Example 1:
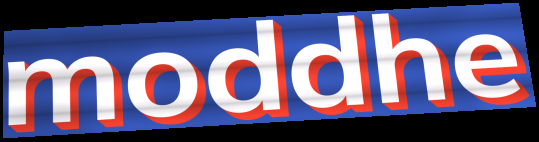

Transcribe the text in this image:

moddhe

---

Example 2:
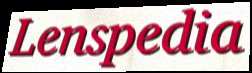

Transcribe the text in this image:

Lenspedia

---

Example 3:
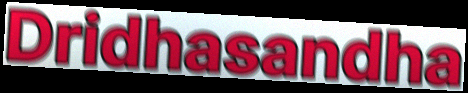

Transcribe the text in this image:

Dridhasandha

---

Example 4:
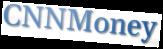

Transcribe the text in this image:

CNNMoney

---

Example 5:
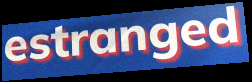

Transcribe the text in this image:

estranged